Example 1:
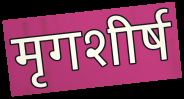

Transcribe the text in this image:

मृगशीर्ष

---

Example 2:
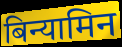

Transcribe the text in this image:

बिन्यामिन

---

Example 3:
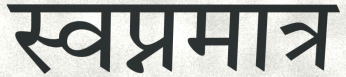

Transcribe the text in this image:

स्वप्नमात्र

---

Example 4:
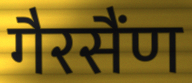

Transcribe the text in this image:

गैरसैंण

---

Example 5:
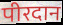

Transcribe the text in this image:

पीरदान